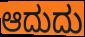
ಆದುದು